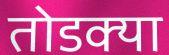
तोडक्या